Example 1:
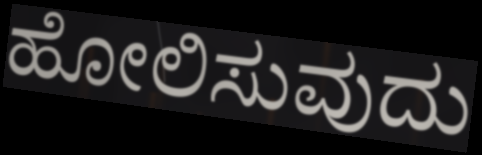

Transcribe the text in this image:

ಹೋಲಿಸುವುದು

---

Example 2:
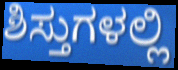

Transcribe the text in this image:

ಶಿಸ್ತುಗಳಲ್ಲಿ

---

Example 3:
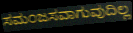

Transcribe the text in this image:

ಸಮಂಜಸವಾಗುವುದಿಲ್ಲ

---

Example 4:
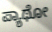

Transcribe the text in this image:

ಪ್ಯಾಥೋ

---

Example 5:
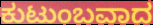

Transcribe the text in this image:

ಕುಟುಂಬವಾದ